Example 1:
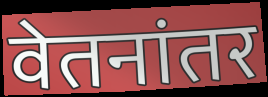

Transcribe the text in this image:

वेतनांतर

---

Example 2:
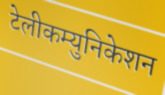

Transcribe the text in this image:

टेलीकम्युनिकेशन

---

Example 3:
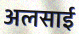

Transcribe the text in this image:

अलसाई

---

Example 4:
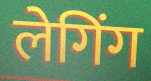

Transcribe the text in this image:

लेगिंग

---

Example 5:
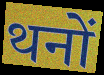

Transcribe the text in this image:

थनों